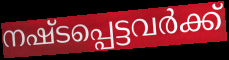
നഷ്ടപ്പെട്ടവർക്ക്